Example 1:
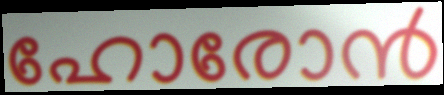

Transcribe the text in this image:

ഹോരോൻ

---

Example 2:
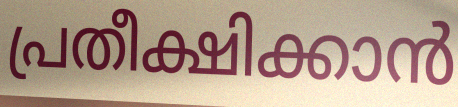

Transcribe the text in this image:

പ്രതീക്ഷിക്കാൻ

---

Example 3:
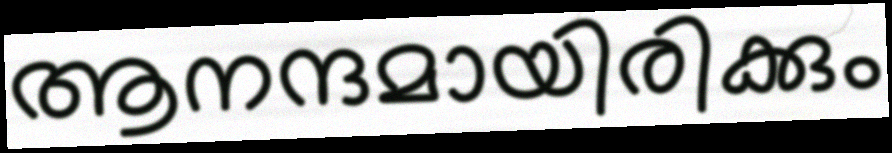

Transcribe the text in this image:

ആനന്ദമായിരിക്കും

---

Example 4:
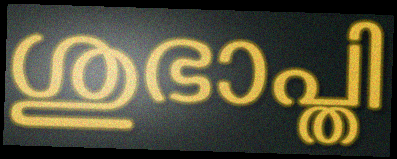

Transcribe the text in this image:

ശുഭാപ്തി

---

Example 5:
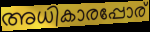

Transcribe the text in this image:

അധികാരപ്പോര്